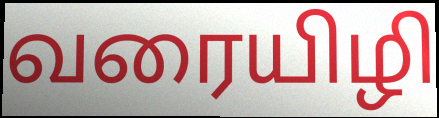
வரையிழி